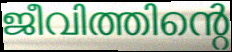
ജീവിത്തിന്റെ